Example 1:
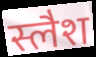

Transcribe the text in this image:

स्लैश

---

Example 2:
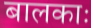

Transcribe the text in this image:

बालकाः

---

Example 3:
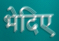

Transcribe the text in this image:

भेदिए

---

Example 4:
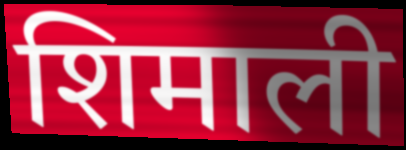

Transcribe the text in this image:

शिमाली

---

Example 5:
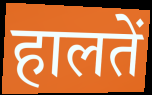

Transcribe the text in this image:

हालतें